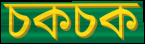
চকচক